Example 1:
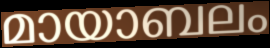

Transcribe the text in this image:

മായാബലം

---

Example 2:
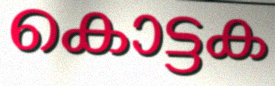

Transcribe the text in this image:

കൊട്ടക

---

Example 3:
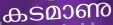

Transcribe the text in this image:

കടമാണു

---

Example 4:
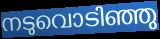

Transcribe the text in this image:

നടുവൊടിഞ്ഞു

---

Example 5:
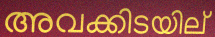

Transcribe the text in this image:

അവക്കിടയില്